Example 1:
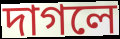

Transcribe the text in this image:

দাগলে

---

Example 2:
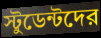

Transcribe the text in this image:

স্টুডেন্টদের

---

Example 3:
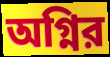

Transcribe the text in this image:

অগ্নির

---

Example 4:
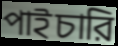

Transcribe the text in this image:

পাইচারি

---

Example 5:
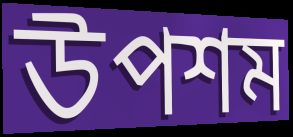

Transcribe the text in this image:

উপশম